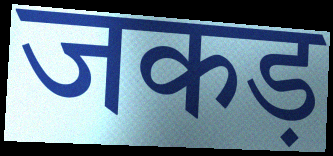
जकड़